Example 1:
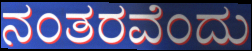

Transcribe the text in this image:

ನಂತರವೆಂದು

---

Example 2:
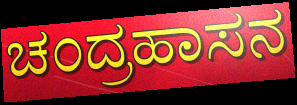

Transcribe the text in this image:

ಚಂದ್ರಹಾಸನ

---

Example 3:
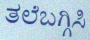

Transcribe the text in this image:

ತಲೆಬಗ್ಗಿಸಿ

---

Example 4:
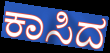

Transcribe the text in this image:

ಕಾಸಿದ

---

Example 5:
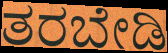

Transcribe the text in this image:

ತರಬೇಡಿ